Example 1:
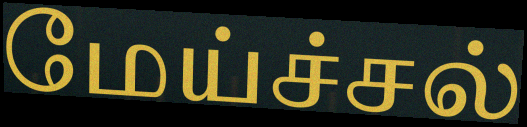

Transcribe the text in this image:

மேய்ச்சல்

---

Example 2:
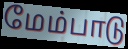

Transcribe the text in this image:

மேம்பாடு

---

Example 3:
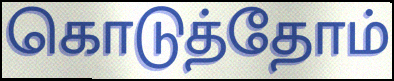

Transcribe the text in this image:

கொடுத்தோம்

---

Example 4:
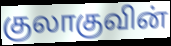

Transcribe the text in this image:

குலாகுவின்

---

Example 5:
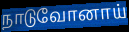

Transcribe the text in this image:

நாடுவோனாய்